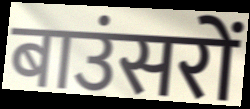
बाउंसरों